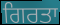
ਗਿਰਤਾ